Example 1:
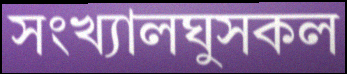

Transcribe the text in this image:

সংখ্যালঘুসকল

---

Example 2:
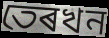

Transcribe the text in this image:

তেৰখন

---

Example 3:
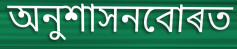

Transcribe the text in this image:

অনুশাসনবোৰত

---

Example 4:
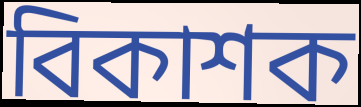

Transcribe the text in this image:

বিকাশক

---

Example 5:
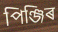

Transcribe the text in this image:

পিঞ্জিৰ